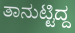
ತಾನುಟ್ಟಿದ್ದ